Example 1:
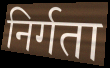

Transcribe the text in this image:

निर्गता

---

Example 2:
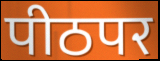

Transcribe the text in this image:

पीठपर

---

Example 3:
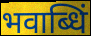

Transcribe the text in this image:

भवाब्धिं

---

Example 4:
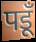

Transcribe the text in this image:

पडूँ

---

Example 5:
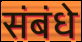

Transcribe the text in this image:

संबंधे